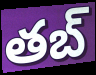
తబ్